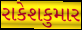
રાકેશકુમાર